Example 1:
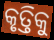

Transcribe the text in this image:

କୃତ୍ତିକୁ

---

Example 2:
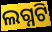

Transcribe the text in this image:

ଲଗ୍ନଟି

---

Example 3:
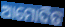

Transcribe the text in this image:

ଆମୋଦିତ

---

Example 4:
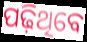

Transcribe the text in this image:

ପଢ଼ିଥିବେ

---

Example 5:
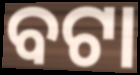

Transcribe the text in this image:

ବଟା